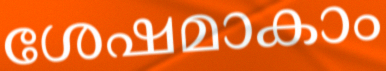
ശേഷമാകാം